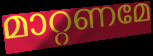
മാറ്റണമേ